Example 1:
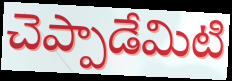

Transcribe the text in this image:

చెప్పాడేమిటి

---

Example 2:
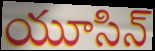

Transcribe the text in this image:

యూసిన్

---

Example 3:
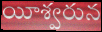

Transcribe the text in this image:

యీశ్వరున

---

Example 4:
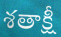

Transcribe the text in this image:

శతాక్షీ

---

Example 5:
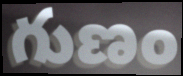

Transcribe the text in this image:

గుణం